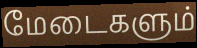
மேடைகளும்